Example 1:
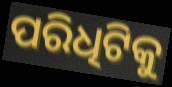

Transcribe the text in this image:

ପରିଧିଟିକୁ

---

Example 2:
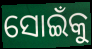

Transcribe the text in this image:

ସୋଇଁକୁ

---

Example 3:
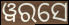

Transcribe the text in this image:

ୱରସେ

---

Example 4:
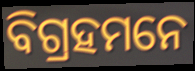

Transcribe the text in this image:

ବିଗ୍ରହମନେ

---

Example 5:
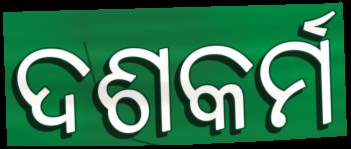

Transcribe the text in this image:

ଦଶକର୍ମ